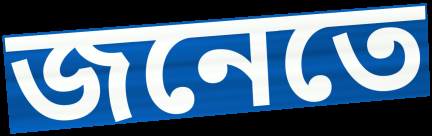
জনেতে